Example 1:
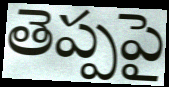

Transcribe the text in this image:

తెప్పపై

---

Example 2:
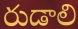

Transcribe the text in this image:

రుడాలి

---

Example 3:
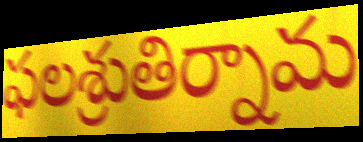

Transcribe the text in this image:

ఫలశ్రుతిర్నామ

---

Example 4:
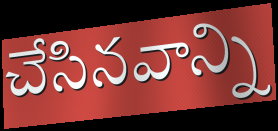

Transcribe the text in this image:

చేసినవాన్ని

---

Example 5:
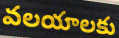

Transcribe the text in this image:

వలయాలకు